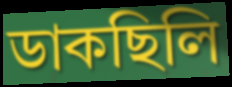
ডাকছিলি